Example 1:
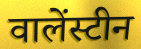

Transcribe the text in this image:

वालेंस्टीन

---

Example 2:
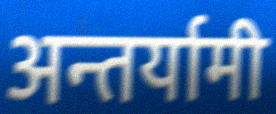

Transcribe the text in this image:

अन्तर्यामी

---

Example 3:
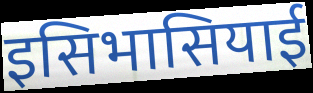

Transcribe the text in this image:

इसिभासियाई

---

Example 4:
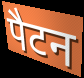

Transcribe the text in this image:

पैटन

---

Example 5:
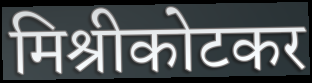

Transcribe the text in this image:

मिश्रीकोटकर